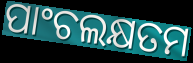
ପାଂଚଲକ୍ଷତମ